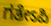
ಗತೇಽಪಿ